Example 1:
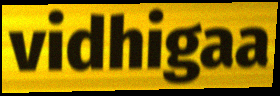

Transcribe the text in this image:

vidhigaa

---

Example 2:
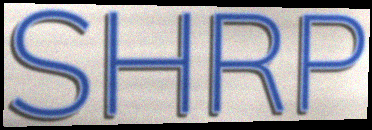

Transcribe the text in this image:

SHRP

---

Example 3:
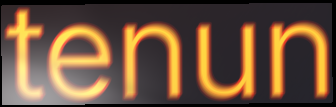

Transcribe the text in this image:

tenun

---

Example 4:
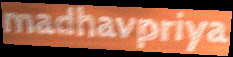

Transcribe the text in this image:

madhavpriya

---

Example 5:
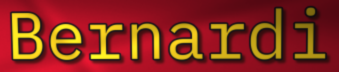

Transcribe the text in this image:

Bernardi